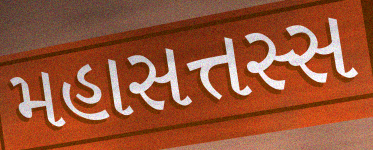
મહાસત્તસ્સ